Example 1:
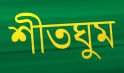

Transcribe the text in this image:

শীতঘুম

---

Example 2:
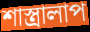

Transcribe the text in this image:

শাস্ত্রালাপ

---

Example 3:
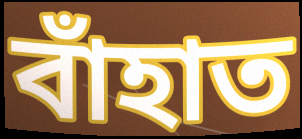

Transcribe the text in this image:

বাঁহাত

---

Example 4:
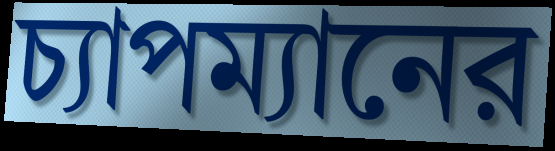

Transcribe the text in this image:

চ্যাপম্যানের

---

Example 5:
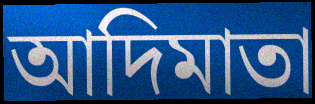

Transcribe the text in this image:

আদিমাতা